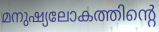
മനുഷ്യലോകത്തിന്റെ